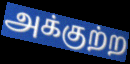
அக்குற்ற